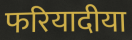
फरियादीया